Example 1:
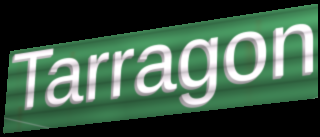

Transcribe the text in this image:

Tarragon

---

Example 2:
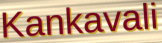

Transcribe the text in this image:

Kankavali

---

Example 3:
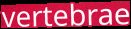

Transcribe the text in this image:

vertebrae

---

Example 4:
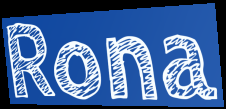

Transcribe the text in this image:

Rona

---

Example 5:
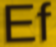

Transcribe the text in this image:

Ef